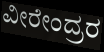
ವೀರೇಂದ್ರರ